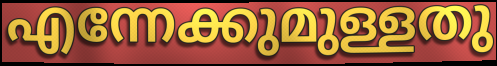
എന്നേക്കുമുള്ളതു